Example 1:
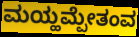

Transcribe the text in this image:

ಮಯ್ಹಮ್ಪೇತಂವ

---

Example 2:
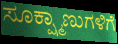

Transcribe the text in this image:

ಸೂಕ್ಷ್ಮಾಣುಗಳಿಗೆ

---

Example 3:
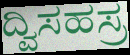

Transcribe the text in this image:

ದ್ವಿಸಹಸ್ರ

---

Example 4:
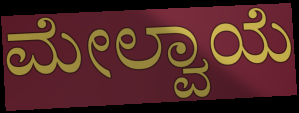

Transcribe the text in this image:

ಮೇಲ್ವಾಯೆ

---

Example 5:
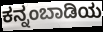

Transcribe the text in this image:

ಕನ್ನಂಬಾಡಿಯ